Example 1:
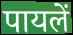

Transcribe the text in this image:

पायलें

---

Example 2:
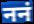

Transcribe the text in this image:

ननं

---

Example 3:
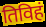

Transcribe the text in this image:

तिविहं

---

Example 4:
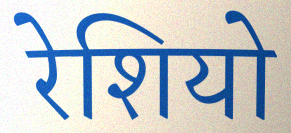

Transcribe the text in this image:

रेशियो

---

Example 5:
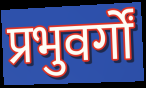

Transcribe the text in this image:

प्रभुवर्गों